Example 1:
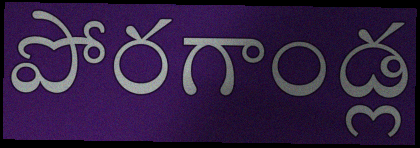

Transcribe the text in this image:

పోరగాండ్ల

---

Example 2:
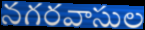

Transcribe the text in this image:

నగరవాసుల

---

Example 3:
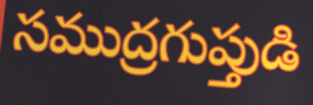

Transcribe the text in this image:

సముద్రగుప్తుడి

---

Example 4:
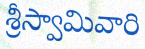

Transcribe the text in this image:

శ్రీస్వామివారి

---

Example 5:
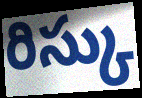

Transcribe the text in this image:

రిస్కు